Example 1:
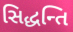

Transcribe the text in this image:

સિદ્ધન્તિ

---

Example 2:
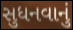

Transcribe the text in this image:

સુધનવાનું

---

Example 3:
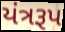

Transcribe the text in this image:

યંત્રરૂપ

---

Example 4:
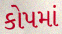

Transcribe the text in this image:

કોપમાં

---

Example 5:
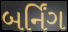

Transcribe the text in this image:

બર્નિંગ